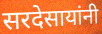
सरदेसायांनी